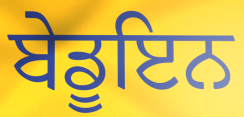
ਬੇਡੂਇਨ